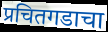
प्रचितगडाचा